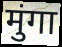
मुंगा